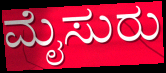
ಮೈಸುರು